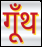
गूँथ